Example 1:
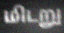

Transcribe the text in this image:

மிடறு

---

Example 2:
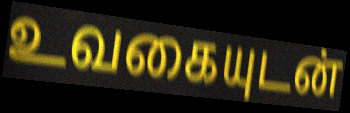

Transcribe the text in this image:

உவகையுடன்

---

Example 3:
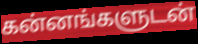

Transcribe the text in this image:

கன்னங்களுடன்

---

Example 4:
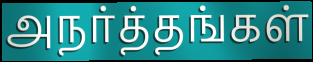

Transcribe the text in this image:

அநர்த்தங்கள்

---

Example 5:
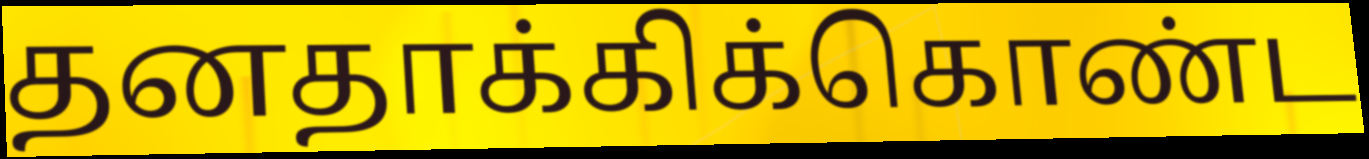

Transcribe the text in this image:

தனதாக்கிக்கொண்ட